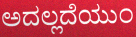
ಅದಲ್ಲದೆಯುಂ